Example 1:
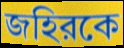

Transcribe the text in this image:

জহিরকে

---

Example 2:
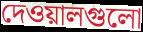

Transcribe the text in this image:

দেওয়ালগুলো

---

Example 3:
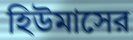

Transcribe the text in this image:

হিউমাসের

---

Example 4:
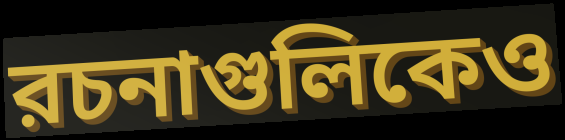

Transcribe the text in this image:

রচনাগুলিকেও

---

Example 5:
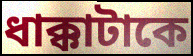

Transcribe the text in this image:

ধাক্কাটাকে